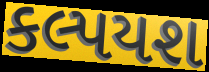
કલ્પયશ